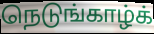
நெடுங்காழ்க்